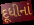
દૂધીનાં